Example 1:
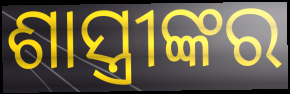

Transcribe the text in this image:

ଶାସ୍ତ୍ରୀଙ୍କର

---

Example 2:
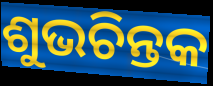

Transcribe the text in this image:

ଶୁଭଚିନ୍ତକ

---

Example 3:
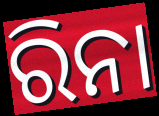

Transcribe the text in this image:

ରିନା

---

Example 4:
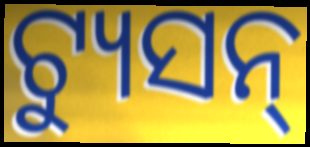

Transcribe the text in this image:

ଟ୍ୟୁସନ୍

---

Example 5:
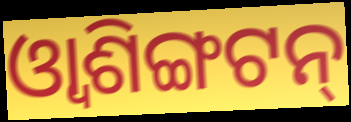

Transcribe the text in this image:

ଓ୍ୱାଶିଙ୍ଗଟନ୍